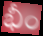
భీం